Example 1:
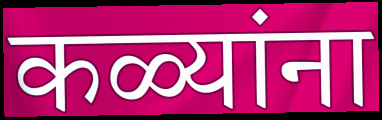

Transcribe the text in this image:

कळ्यांना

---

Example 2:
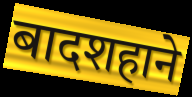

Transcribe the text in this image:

बादशहाने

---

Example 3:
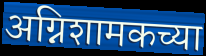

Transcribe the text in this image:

अग्निशामकच्या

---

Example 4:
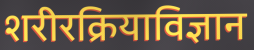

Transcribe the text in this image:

शरीरक्रियाविज्ञान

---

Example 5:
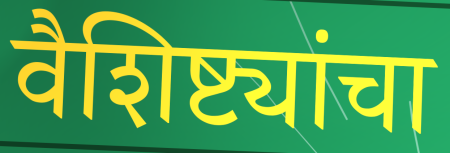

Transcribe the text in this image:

वैशिष्ट्यांचा